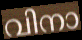
വിനാ